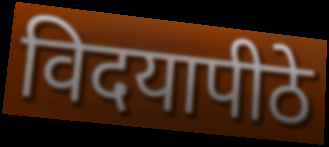
विदयापीठे